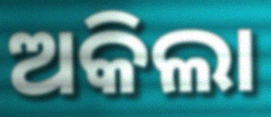
ଅକିଲା